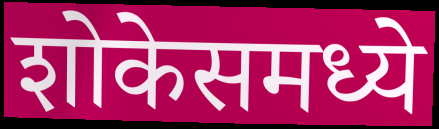
शोकेसमध्ये